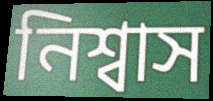
নিশ্বাস